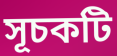
সূচকটি